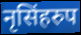
नृसिंहरुप